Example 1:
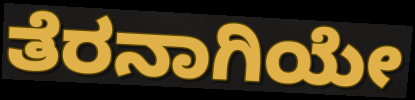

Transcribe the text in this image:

ತೆರನಾಗಿಯೇ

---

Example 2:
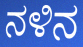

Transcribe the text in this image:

ನಳಿನ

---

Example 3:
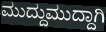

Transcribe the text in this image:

ಮುದ್ದುಮುದ್ದಾಗಿ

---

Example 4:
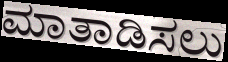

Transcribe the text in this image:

ಮಾತಾಡಿಸಲು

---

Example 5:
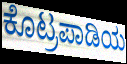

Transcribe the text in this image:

ಕೊಟ್ರಪಾಡಿಯ